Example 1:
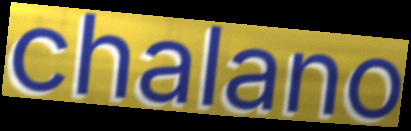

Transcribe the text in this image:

chalano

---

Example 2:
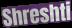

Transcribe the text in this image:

Shreshti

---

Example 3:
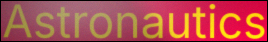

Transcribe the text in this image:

Astronautics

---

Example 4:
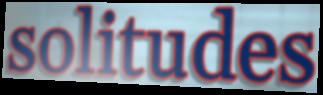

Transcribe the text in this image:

solitudes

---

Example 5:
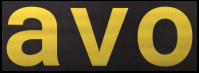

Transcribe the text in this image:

avo